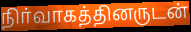
நிர்வாகத்தினருடன்